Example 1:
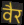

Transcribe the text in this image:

वैर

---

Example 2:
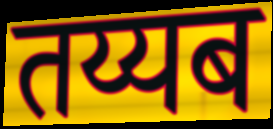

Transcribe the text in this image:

तय्यब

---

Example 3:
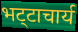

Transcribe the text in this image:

भट्‍टाचार्य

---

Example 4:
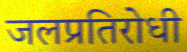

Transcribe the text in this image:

जलप्रतिरोधी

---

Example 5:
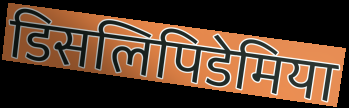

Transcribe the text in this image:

डिसलिपिडेमिया